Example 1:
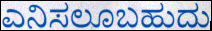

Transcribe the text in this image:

ಎನಿಸಲೂಬಹುದು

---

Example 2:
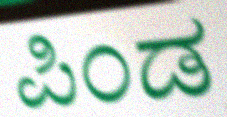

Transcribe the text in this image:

ಪಿಂಡ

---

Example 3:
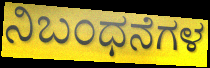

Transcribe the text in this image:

ನಿಬಂಧನೆಗಳ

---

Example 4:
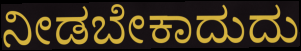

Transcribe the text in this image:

ನೀಡಬೇಕಾದುದು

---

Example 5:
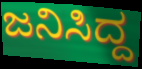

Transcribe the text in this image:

ಜನಿಸಿದ್ದ